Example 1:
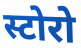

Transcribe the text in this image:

स्टोरो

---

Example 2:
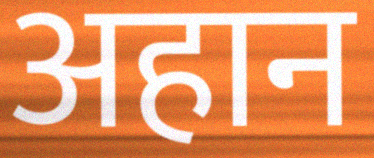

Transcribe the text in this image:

अहान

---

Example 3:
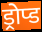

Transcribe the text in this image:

ड्रोप्ड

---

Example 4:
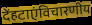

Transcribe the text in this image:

देंहटाएंविचारणीय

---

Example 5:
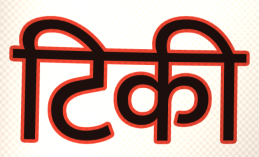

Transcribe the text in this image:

टिकी